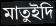
মাতুইদি